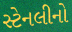
સ્ટેનલીનો